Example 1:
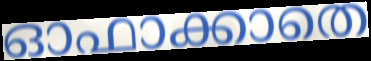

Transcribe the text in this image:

ഓഫാക്കാതെ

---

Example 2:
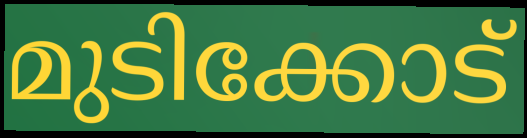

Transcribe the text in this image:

മുടിക്കോട്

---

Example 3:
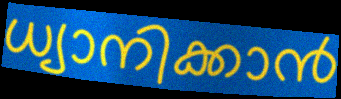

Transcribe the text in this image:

ധ്യാനിക്കാൻ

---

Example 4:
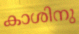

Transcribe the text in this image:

കാശിനു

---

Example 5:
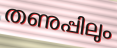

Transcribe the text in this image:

തണുപ്പിലും